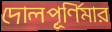
দোলপূর্ণিমার